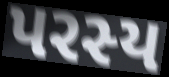
પરસ્ય